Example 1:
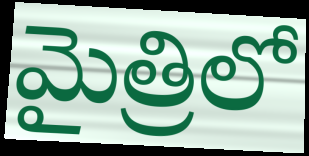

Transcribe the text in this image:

మైత్రిలో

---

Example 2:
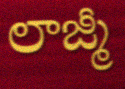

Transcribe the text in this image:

లాజ్మీ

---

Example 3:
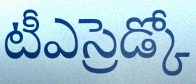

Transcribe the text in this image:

టీఎస్రెడ్కో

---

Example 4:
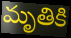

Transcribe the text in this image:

మృతికి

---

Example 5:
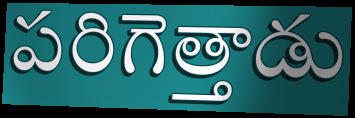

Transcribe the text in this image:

పరిగెత్తాడు